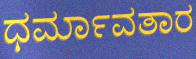
ಧರ್ಮಾವತಾರ